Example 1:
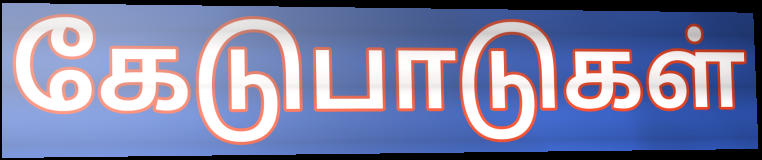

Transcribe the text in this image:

கேடுபாடுகள்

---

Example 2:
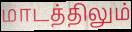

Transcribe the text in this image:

மாடத்திலும்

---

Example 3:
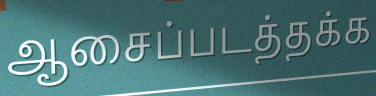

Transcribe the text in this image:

ஆசைப்படத்தக்க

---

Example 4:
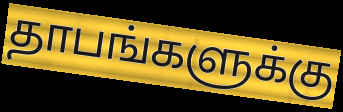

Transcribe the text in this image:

தாபங்களுக்கு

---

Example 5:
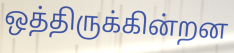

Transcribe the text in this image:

ஒத்திருக்கின்றன